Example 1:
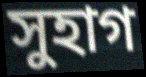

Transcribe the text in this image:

সুহাগ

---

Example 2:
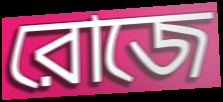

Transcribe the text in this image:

রোজে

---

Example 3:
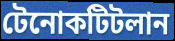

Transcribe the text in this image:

টেনোকটিটলান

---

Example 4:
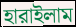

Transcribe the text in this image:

হারাইলাম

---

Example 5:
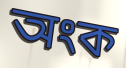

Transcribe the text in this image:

অংক